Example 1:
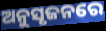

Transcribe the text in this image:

ଅନୁସୃଜନରେ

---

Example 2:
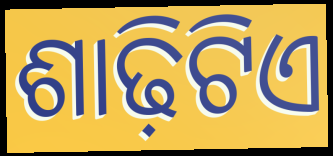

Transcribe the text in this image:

ଶାଢ଼ିଟିଏ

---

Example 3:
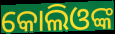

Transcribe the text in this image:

କୋଲିଓଙ୍କ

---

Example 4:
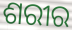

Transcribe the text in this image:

ଶରୀର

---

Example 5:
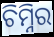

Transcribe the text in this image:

ଚିମ୍ନିର